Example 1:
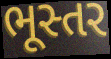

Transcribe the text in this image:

ભૂસ્તર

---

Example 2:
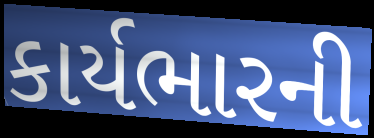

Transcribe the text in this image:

કાર્યભારની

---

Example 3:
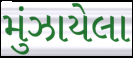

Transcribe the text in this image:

મુંઝાયેલા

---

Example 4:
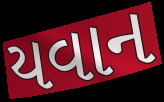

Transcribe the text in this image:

યવાન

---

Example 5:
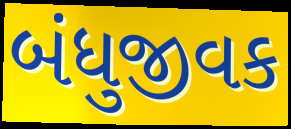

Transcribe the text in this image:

બંધુજીવક